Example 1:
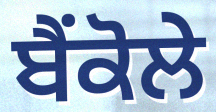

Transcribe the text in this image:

ਬੈਂਕੋਲੇ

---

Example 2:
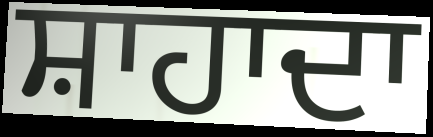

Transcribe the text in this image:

ਸ਼ਾਹਾਦਾ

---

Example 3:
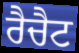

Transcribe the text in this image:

ਰੈਚੈਟ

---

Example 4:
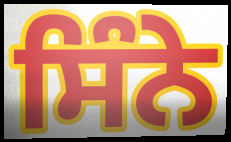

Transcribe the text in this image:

ਸਿੰਨੇ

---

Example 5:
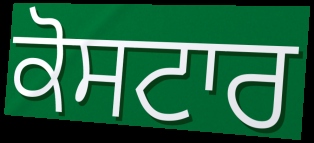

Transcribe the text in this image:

ਕੋਸਟਾਰ